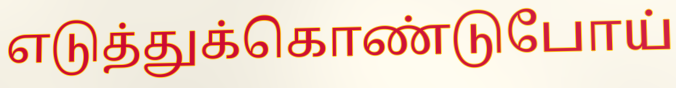
எடுத்துக்கொண்டுபோய்